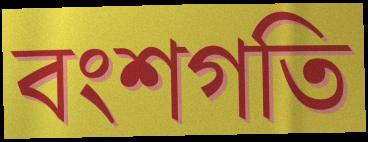
বংশগতি